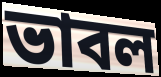
ভাবল